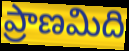
ప్రాణమిది